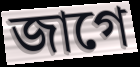
জাগে